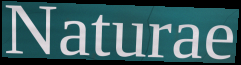
Naturae